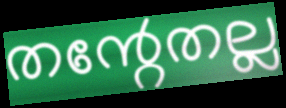
തന്റേതല്ല